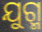
ଯୁଗ୍ମ